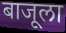
बाजूला